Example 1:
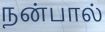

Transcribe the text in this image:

நன்பால்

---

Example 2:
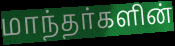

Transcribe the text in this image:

மாந்தர்களின்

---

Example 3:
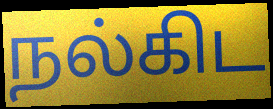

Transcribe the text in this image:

நல்கிட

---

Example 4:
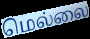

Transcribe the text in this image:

மெல்லை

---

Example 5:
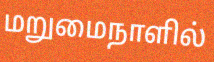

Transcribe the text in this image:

மறுமைநாளில்